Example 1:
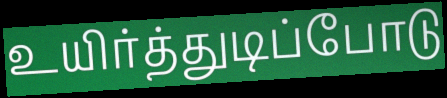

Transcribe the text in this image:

உயிர்த்துடிப்போடு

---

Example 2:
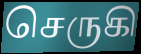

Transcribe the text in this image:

செருகி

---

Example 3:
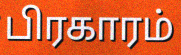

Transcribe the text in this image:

பிரகாரம்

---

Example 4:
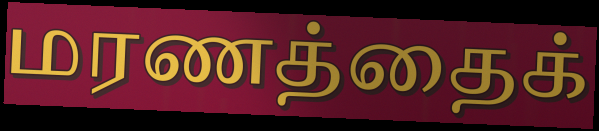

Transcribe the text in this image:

மரணத்தைக்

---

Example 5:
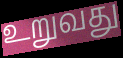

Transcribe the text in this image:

உறுவது